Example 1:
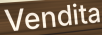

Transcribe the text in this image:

Vendita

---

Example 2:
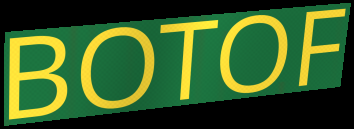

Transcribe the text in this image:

BOTOF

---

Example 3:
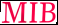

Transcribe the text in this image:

MIB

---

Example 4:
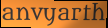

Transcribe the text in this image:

anvyarth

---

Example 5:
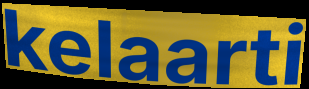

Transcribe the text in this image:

kelaarti